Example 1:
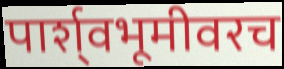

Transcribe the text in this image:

पार्श्वभूमीवरच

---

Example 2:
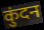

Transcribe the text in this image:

कुंदन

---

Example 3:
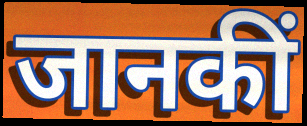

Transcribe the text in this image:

जानकीं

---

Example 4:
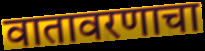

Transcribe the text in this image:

वातावरणाचा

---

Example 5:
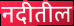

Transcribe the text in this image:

नदीतील